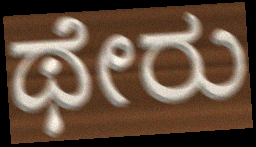
ಥೇರು